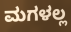
ಮಗಳಲ್ಲ